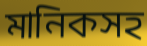
মানিকসহ